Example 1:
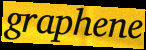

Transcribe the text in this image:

graphene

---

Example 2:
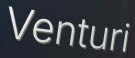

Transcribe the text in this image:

Venturi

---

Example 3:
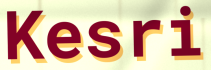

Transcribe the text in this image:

Kesri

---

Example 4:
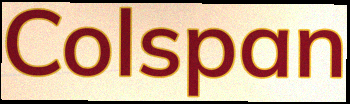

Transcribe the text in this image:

Colspan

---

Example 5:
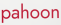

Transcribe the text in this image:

pahoon